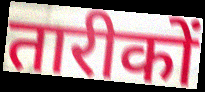
तारीकों